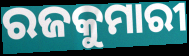
ରଜକୁମାରୀ